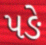
પઙે